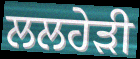
ਲਲਹੇੜੀ